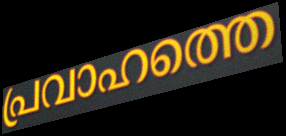
പ്രവാഹത്തെ